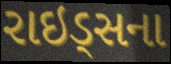
રાઇડ્સના